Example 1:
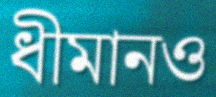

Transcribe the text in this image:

ধীমানও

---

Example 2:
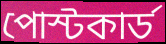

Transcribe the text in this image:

পোস্টকার্ড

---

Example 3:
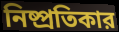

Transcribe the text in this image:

নিষ্প্রতিকার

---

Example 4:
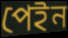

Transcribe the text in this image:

পেইন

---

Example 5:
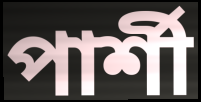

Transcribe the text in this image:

পার্শী